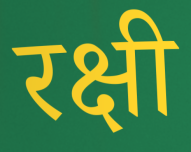
रक्षी